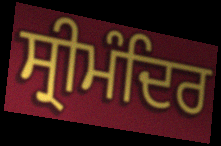
ਸ੍ਰੀਮੰਦਿਰ